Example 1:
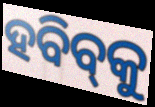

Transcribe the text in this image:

ହବିବ୍‌କୁ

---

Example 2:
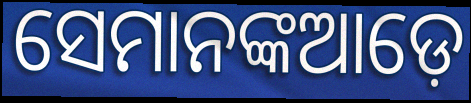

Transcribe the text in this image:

ସେମାନଙ୍କଆଡ଼େ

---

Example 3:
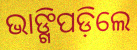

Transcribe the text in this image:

ଭାଙ୍ଗିପଡ଼ିଲେ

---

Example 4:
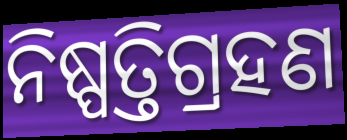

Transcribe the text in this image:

ନିଷ୍ପତ୍ତିଗ୍ରହଣ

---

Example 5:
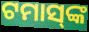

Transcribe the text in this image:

ଟମାସ୍‌ଙ୍କ